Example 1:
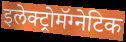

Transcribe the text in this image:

इलेक्ट्रोमॅग्नेटिक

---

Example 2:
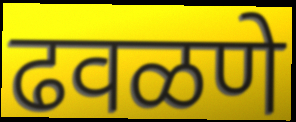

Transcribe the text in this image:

ढवळणे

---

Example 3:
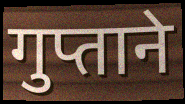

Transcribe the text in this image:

गुप्ताने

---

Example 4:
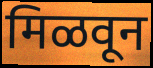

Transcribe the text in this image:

मिळवून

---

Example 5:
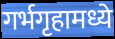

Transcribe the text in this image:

गर्भगृहामध्ये